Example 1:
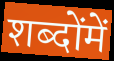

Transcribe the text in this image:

शब्दोंमें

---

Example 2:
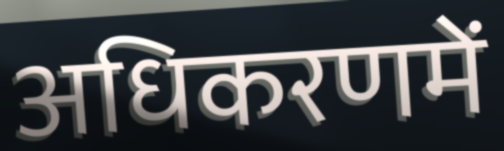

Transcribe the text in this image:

अधिकरणमें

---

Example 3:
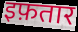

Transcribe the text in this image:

इफ़तार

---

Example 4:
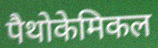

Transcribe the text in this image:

पैथोकेमिकल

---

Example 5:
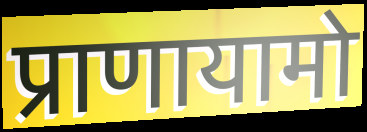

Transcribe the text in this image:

प्राणायामो